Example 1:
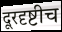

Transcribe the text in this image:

दूरदृष्टीच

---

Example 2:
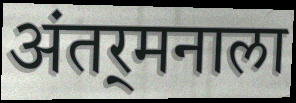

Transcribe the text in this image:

अंतर्मनाला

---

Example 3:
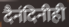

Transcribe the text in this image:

दैनंदिनीही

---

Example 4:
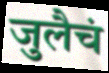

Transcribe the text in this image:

जुलैचं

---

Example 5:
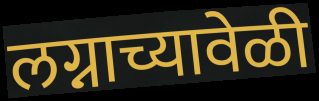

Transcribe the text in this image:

लग्नाच्यावेळी